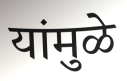
यांमुळे